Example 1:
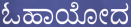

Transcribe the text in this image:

ಓಹಾಯೋದ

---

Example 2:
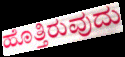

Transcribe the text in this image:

ಹೊತ್ತಿರುವುದು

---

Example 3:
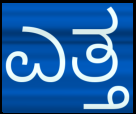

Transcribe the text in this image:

ಎತ್ತ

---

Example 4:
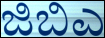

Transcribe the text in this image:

ಜಿಬಿಎ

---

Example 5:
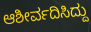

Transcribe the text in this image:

ಆಶೀರ್ವದಿಸಿದ್ದು